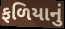
ફળિયાનું